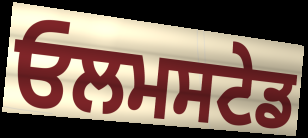
ਓਲਮਸਟੇਡ